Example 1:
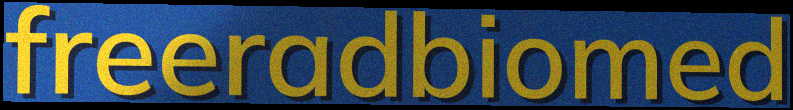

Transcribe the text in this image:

freeradbiomed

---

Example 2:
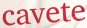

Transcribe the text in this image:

cavete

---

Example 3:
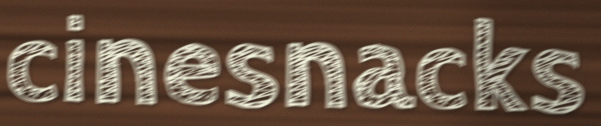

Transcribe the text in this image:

cinesnacks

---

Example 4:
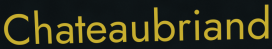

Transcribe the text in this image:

Chateaubriand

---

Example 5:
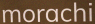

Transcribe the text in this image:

morachi